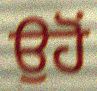
ਉਹੋਂ